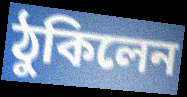
ঠুকিলেন